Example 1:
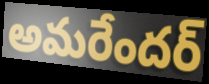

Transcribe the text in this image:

అమరేందర్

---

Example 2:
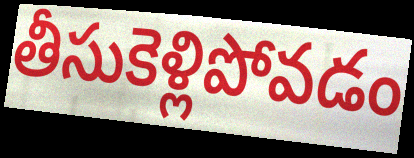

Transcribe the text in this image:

తీసుకెళ్లిపోవడం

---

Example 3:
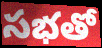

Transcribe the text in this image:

సభతో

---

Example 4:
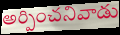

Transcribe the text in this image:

అర్పించనివాడు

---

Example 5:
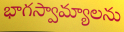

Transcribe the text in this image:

భాగస్వామ్యాలను